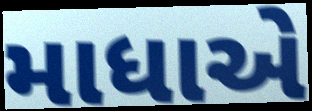
માધાએ